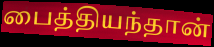
பைத்தியந்தான்